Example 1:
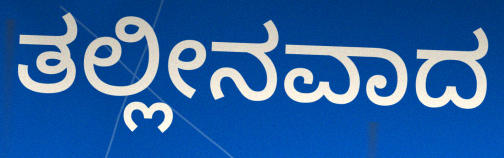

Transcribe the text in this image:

ತಲ್ಲೀನವಾದ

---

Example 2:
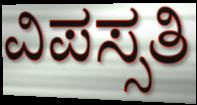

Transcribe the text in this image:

ವಿಪಸ್ಸತಿ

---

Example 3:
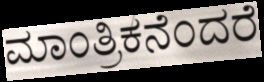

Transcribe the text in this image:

ಮಾಂತ್ರಿಕನೆಂದರೆ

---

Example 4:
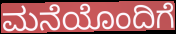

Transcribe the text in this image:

ಮನೆಯೊಂದಿಗೆ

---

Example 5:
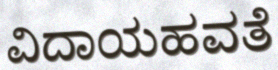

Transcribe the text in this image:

ವಿದಾಯಹವತೆ